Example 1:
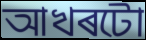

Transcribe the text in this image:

আখৰটো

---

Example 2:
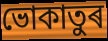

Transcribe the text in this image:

ভোকাতুৰ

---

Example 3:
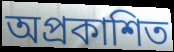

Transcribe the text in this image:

অপ্ৰকাশিত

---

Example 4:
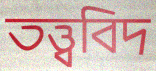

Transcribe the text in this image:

তত্ত্ববিদ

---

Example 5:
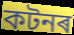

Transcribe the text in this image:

কটনৰ